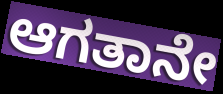
ಆಗತಾನೇ